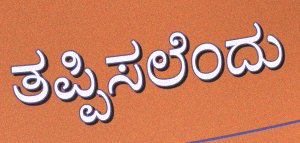
ತಪ್ಪಿಸಲೆಂದು